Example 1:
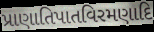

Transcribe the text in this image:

પ્રાણાતિપાતવિરમણાદિ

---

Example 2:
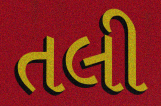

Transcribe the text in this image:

તલી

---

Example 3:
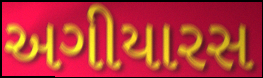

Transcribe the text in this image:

અગીયારસ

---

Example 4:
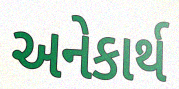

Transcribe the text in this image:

અનેકાર્થ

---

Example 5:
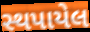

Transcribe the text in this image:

સ્થપાયેલ